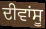
ਦੀਵਾਂਸੂ